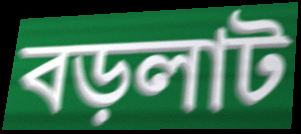
বড়লাট